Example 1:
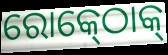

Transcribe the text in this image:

ରୋକ୍‍ଠୋକ୍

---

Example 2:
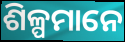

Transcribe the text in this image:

ଶିଳ୍ପମାନେ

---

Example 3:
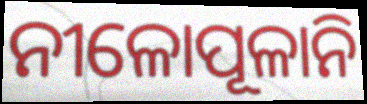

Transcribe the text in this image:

ନୀଳୋପୂଳାନି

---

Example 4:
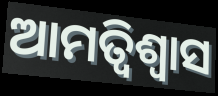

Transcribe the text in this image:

ଆମତ୍ବିଶ୍ୱାସ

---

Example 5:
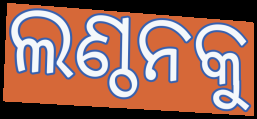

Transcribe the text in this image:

ଲଣ୍ଠନକୁ